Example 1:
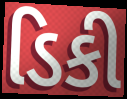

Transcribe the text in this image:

ડિકી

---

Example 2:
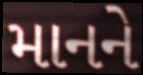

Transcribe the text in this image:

માનને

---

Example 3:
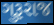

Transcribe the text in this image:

ગુરૂરાજ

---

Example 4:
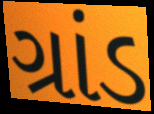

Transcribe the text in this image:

ગ્રાંડ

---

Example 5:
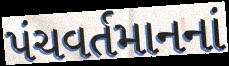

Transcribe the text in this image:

પંચવર્તમાનનાં